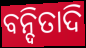
ବନ୍ଦିତାଦି